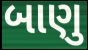
બાણુ